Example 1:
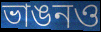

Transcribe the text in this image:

ভাঙনও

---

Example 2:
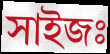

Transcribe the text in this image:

সাইজঃ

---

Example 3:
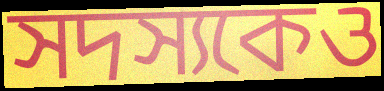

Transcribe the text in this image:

সদস্যকেও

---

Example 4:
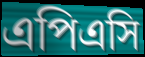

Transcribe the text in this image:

এপিএসি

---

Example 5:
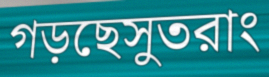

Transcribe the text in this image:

গড়ছেসুতরাং